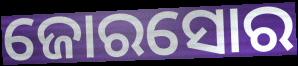
ଜୋରସୋର